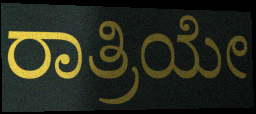
ರಾತ್ರಿಯೇ